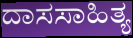
ದಾಸಸಾಹಿತ್ಯ